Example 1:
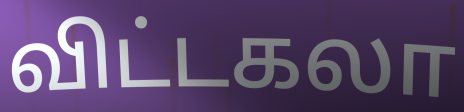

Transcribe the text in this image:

விட்டகலா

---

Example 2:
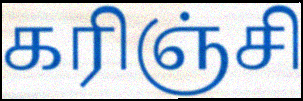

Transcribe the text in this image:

கரிஞ்சி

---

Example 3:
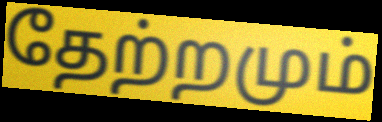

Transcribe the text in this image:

தேற்றமும்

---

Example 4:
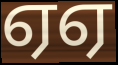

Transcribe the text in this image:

ஏஏ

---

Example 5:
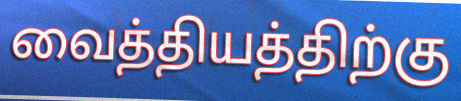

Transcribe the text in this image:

வைத்தியத்திற்கு